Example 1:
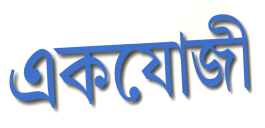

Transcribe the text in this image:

একযোজী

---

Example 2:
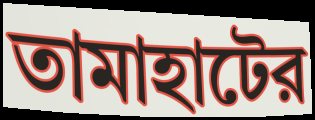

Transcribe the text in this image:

তামাহাটের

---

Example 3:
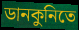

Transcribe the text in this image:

ডানকুনিতে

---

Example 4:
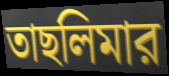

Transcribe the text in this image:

তাছলিমার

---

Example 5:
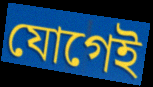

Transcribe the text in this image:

যোগেই